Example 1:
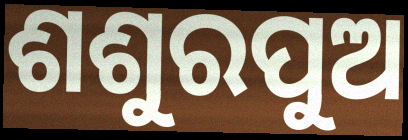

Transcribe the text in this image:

ଶଶୁରପୁଅ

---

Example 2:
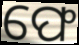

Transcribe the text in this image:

ଫେ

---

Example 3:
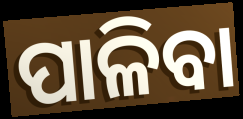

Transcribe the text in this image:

ପାଳିବା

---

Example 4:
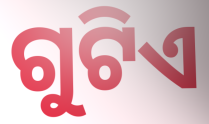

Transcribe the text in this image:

ଗୁଟିଏ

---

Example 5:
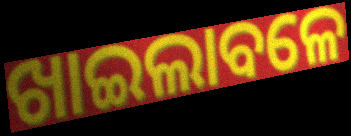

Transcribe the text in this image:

ଖାଇଲାବଳେ